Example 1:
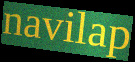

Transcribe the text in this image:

navilap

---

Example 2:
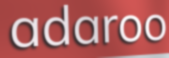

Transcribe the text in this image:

adaroo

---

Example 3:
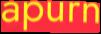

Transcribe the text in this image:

apurn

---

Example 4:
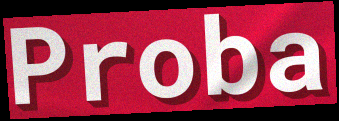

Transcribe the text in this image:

Proba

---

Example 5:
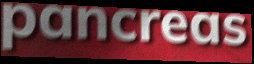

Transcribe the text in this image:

pancreas